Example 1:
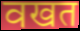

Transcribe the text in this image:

वखत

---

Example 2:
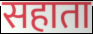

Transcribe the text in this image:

सहाता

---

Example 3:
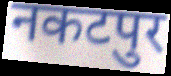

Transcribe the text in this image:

नकटपुर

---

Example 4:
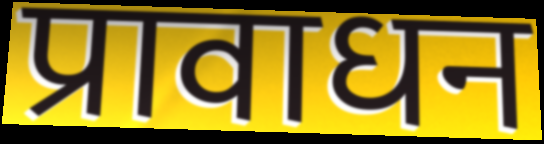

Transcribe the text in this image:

प्रावाधन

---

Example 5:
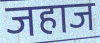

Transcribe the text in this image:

जहाज